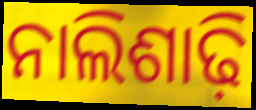
ନାଲିଶାଢ଼ି